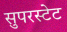
सुपरस्टेट